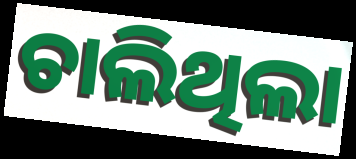
ଚାଲିଥିଲା